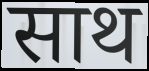
साथ